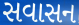
સવાસન